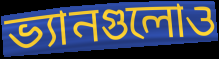
ভ্যানগুলোও